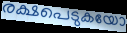
രക്ഷപെടുകയോ